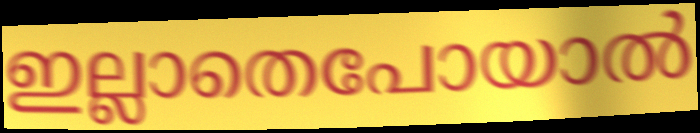
ഇല്ലാതെപോയാൽ